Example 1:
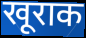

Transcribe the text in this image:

खूराक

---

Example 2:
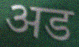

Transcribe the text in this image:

अड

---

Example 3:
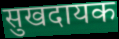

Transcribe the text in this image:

सुखदायक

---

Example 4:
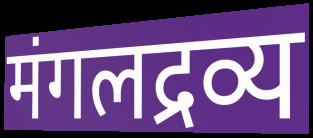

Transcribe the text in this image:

मंगलद्रव्य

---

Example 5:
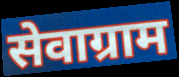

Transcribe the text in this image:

सेवाग्राम